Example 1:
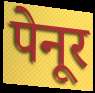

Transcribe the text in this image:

पेनूर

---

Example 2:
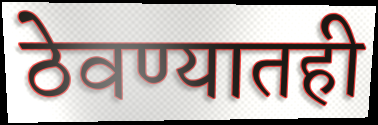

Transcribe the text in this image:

ठेवण्यातही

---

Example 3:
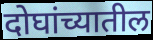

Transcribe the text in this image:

दोघांच्यातील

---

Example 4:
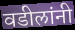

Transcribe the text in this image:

वडीलांनी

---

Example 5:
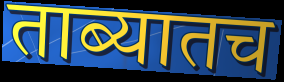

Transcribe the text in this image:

ताब्यातच